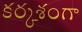
కర్కశంగా